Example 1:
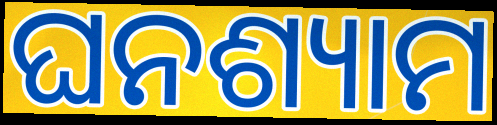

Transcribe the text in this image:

ଘନଶ୍ୟାମ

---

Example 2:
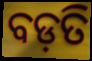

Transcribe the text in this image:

ବଡ଼ତି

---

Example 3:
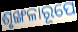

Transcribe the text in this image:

ଶୃଙ୍ଖଳାରୂପେ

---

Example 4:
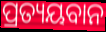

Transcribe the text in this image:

ପ୍ରତ୍ୟୟବାନ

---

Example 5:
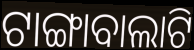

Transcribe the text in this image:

ଟାଙ୍ଗାବାଲାଟି